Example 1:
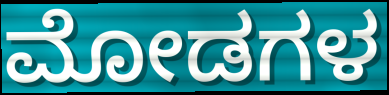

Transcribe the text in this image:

ಮೋಡಗಳ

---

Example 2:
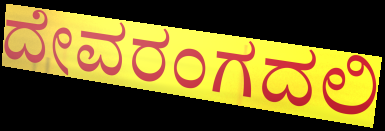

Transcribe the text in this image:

ದೇವರಂಗದಲಿ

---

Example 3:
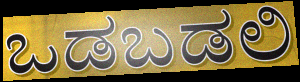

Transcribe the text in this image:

ಒಡಬಡಲಿ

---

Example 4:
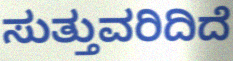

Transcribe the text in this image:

ಸುತ್ತುವರಿದಿದೆ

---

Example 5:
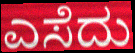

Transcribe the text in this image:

ಎಸೆದು